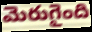
మెరుగైంది